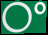
ଠଂ